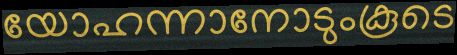
യോഹന്നാനോടുംകൂടെ